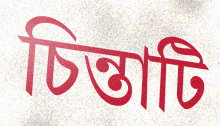
চিন্তাটি